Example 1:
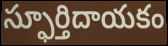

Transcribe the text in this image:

స్ఫూర్తిదాయకం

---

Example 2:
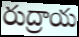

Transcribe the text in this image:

రుద్రాయ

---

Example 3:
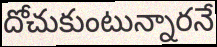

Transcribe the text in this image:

దోచుకుంటున్నారనే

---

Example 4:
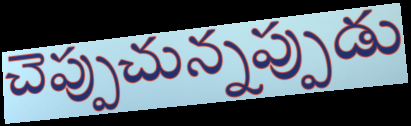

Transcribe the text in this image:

చెప్పుచున్నప్పుడు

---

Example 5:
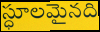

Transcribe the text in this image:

స్ధూలమైనది